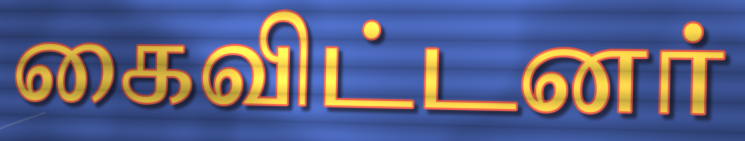
கைவிட்டனர்